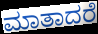
ಮಾತಾದರೆ